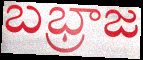
బభ్రాజ